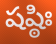
షష్ఠిః